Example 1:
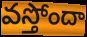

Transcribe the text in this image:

వస్తోందా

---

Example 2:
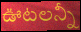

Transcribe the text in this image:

ఊటలన్నీ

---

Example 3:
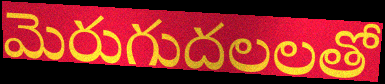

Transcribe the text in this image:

మెరుగుదలలతో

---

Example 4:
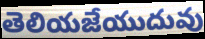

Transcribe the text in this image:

తెలియజేయుదువు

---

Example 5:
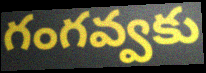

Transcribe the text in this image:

గంగవ్వకు